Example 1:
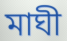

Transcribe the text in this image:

মাঘী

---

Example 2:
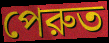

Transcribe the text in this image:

পেরুত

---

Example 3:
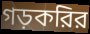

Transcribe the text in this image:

গড়করির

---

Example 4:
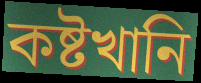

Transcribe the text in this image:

কষ্টখানি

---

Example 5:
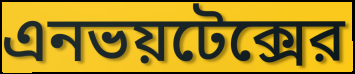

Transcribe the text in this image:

এনভয়টেক্সের